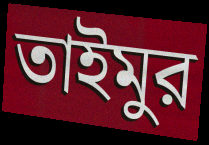
তাইমুর